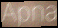
Apna